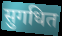
सुगधित